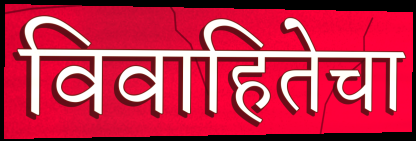
विवाहितेचा